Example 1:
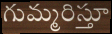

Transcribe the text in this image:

గుమ్మరిస్తూ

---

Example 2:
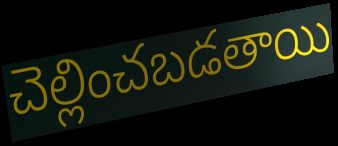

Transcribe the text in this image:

చెల్లించబడతాయి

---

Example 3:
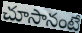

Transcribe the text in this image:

చూసానంటే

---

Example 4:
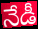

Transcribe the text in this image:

నేడీ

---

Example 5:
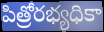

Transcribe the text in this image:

పిత్రోరభ్యధికా